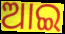
ଆଇ